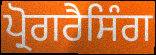
ਪ੍ਰੋਗਰੈਸਿੰਗ